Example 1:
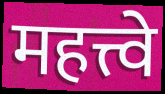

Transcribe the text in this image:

महत्त्वे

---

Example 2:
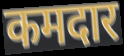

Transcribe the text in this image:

कमदार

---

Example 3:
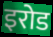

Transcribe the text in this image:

इरोड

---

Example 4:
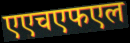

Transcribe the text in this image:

एएचएफएल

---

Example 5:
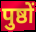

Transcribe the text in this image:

पुष्ठों